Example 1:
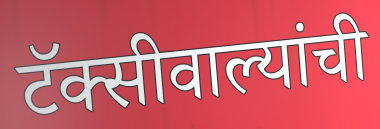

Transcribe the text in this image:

टॅक्सीवाल्यांची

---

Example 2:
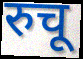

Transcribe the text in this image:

रुचू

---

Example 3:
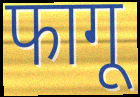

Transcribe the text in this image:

फागू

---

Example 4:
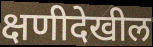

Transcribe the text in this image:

क्षणीदेखील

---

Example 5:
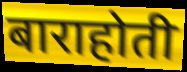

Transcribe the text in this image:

बाराहोती